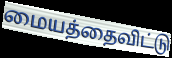
மையத்தைவிட்டு